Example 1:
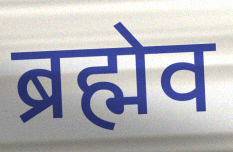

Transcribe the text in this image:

ब्रह्मेव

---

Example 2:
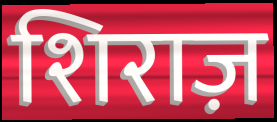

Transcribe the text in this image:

शिराज़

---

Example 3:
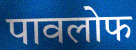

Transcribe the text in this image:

पावलोफ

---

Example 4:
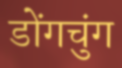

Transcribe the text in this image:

डोंगचुंग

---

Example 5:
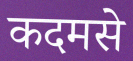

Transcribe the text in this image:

कदमसे